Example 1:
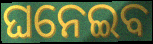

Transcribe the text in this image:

ଘନେଇବ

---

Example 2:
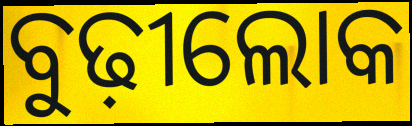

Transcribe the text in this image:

ବୁଢ଼ୀଲୋକ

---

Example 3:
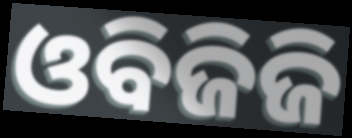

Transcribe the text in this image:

ଓବିଜିଜି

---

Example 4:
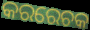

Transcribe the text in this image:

କରରେଚକ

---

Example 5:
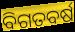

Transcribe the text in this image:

ବିଗତବର୍ଷ